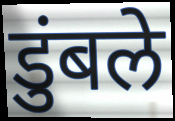
डुंबले